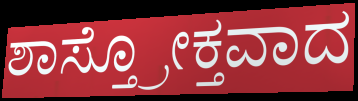
ಶಾಸ್ತ್ರೋಕ್ತವಾದ